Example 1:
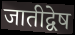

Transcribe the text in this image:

जातीद्वेष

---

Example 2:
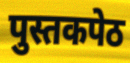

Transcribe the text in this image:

पुस्तकपेठ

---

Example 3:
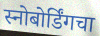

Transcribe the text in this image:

स्नोबोर्डिंगचा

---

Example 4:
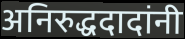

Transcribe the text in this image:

अनिरुद्धदादांनी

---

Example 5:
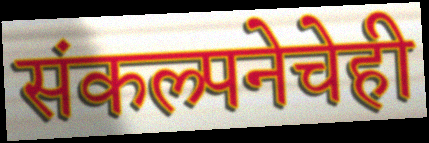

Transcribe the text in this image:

संकल्पनेचेही